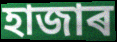
হাজাৰ